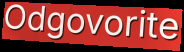
Odgovorite